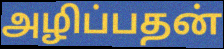
அழிப்பதன்